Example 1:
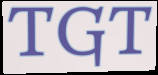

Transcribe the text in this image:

TGT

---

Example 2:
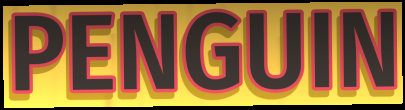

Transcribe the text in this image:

PENGUIN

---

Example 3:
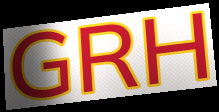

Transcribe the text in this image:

GRH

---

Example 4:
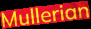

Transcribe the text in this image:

Mullerian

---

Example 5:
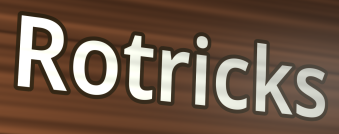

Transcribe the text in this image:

Rotricks